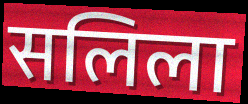
सलिला